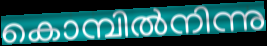
കൊമ്പിൽനിന്നു